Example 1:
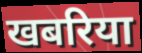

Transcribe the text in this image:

खबरिया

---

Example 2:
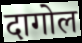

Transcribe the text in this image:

दागोल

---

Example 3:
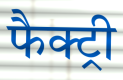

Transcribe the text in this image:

फैक्ट्री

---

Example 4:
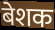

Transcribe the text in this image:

बेशक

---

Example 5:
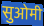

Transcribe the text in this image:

सुओमी